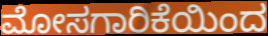
ಮೋಸಗಾರಿಕೆಯಿಂದ